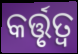
କର୍ତ୍ତୃତ୍ଵ